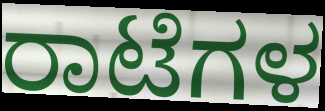
ರಾಟೆಗಳ